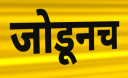
जोडूनच